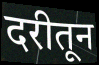
दरीतून